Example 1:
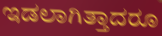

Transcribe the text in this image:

ಇಡಲಾಗಿತ್ತಾದರೂ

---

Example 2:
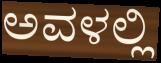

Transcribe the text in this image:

ಅವಳಲ್ಲಿ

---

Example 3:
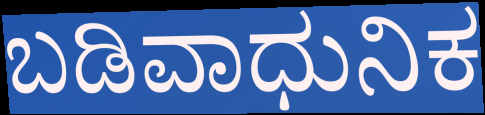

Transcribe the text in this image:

ಬಡಿವಾಧುನಿಕ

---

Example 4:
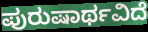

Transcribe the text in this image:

ಪುರುಷಾರ್ಥವಿದೆ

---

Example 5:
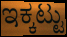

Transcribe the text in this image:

ಇಕ್ಕಟ್ಟು